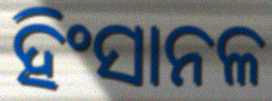
ହିଂସାନଳ